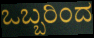
ಒಬ್ಬರಿಂದ